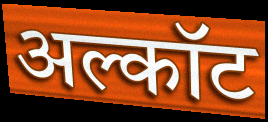
अल्कॉट